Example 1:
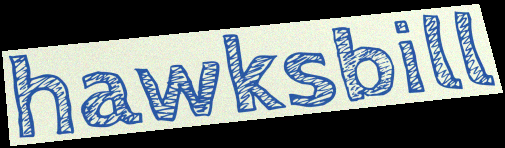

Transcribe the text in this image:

hawksbill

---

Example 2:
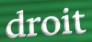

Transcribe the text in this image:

droit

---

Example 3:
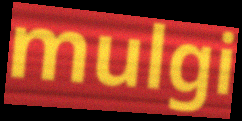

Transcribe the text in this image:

mulgi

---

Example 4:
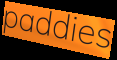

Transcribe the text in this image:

paddies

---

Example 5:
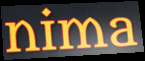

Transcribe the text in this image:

nima